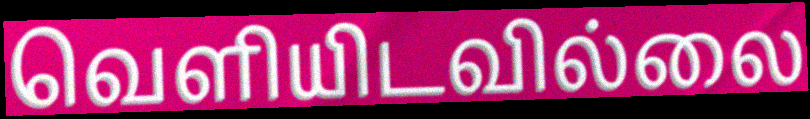
வெளியிடவில்லை